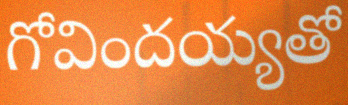
గోవిందయ్యతో